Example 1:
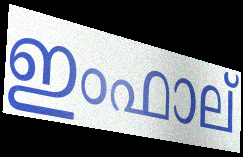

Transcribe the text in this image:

ഇംഫാല്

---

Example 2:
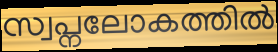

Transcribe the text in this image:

സ്വപ്നലോകത്തിൽ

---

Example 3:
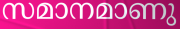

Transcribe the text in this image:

സമാനമാണു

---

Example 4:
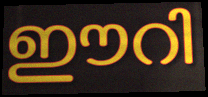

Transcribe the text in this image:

ഈറി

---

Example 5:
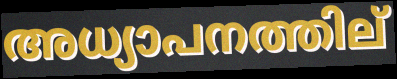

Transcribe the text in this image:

അധ്യാപനത്തില്